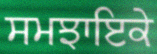
ਸਮਝਾਇਕੇ